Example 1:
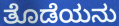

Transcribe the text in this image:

ತೊಡೆಯನು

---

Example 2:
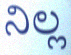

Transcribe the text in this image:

ನಿಲ್ಲ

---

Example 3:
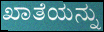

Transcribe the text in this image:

ಖಾತೆಯನ್ನು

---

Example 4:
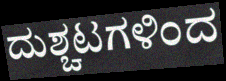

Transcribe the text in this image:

ದುಶ್ಚಟಗಳಿಂದ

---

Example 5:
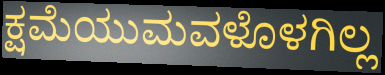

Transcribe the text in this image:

ಕ್ಷಮೆಯುಮವಳೊಳಗಿಲ್ಲ